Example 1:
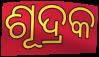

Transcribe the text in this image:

ଶୂଦ୍ରକ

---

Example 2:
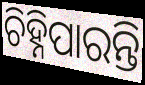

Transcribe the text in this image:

ଚିହ୍ନିପାରନ୍ତି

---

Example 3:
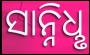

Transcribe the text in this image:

ସାନ୍ନିଧୢ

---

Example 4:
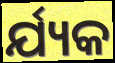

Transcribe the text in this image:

ର୍ଯ୍ୟକ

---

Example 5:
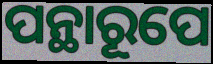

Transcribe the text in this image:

ପନ୍ଥାରୂପେ